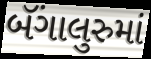
બૅંગાલુરુમાં